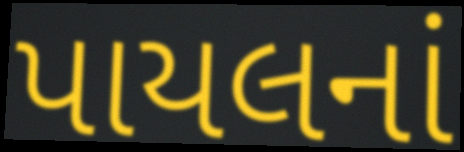
પાયલનાં